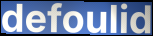
defoulid